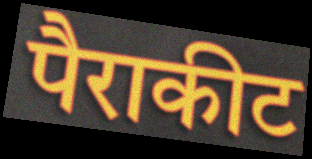
पैराकीट